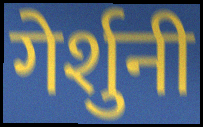
गेर्शुनी